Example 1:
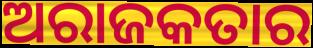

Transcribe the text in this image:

ଅରାଜକତାର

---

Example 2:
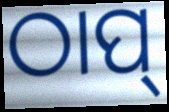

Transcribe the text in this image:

ଠାପ୍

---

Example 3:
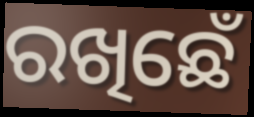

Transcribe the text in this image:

ରଖିଛେଁ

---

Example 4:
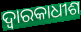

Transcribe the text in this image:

ଦ୍ୱାରକାଧୀଶ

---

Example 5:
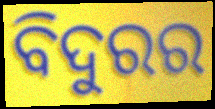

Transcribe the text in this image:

ବିଦୁରର